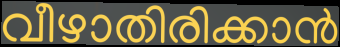
വീഴാതിരിക്കാൻ